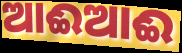
ଆଈଆଈ